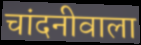
चांदनीवाला